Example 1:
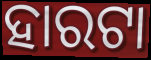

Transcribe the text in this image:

ହାରଟା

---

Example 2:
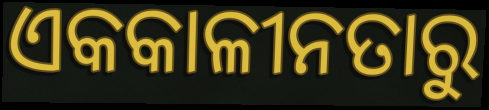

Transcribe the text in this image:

ଏକକାଳୀନତାରୁ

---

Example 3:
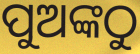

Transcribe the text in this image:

ପୁଅଙ୍କଠୁ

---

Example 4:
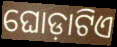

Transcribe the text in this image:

ଘୋଡ଼ାଟିଏ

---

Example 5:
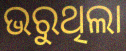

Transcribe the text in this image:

ଭରୁଥିଲା